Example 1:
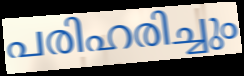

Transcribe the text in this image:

പരിഹരിച്ചും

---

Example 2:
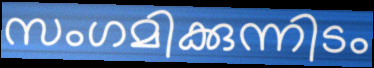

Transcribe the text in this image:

സംഗമിക്കുന്നിടം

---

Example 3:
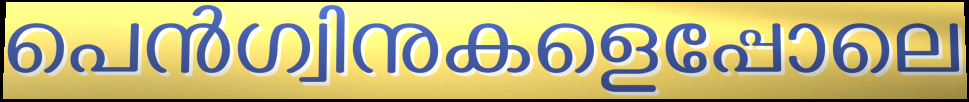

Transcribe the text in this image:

പെൻഗ്വിനുകളെപ്പോലെ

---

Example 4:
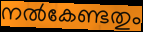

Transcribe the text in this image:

നൽകേണ്ടതും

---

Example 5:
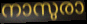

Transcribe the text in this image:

നാസുരാ